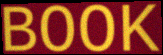
BOOK